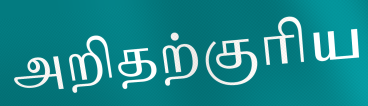
அறிதற்குரிய